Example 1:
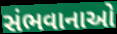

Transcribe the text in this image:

સંભવાનાઓ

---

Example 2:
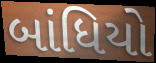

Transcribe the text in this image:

બાંધિયો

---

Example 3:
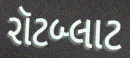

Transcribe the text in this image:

રૉટબ્લાટ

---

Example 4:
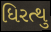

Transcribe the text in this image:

ધિરત્થુ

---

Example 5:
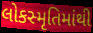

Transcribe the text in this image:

લોકસ્મૃતિમાંથી